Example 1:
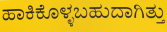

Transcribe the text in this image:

ಹಾಕಿಕೊಳ್ಳಬಹುದಾಗಿತ್ತು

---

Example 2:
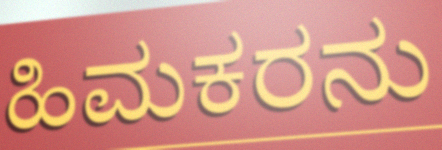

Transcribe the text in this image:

ಹಿಮಕರನು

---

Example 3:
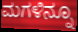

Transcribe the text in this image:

ಮಗಳಿನ್ನೂ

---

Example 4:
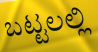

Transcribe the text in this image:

ಬಟ್ಟಲಲ್ಲಿ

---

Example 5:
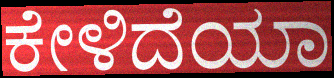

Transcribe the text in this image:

ಕೇಳಿದೆಯಾ